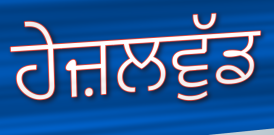
ਹੇਜ਼ਲਵੁੱਡ